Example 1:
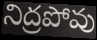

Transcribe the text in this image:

నిద్రపోవు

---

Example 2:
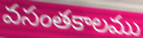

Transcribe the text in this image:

వసంతకాలము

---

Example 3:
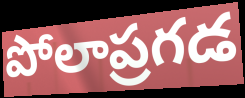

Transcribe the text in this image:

పోలాప్రగడ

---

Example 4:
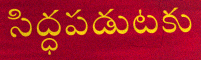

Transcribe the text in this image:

సిద్ధపడుటకు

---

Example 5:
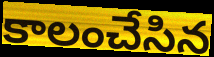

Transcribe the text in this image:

కాలంచేసిన